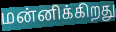
மன்னிக்கிறது